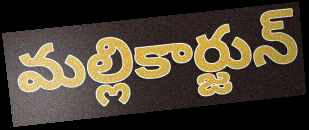
మల్లికార్జున్